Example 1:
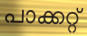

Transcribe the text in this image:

പാക്കറ്റ്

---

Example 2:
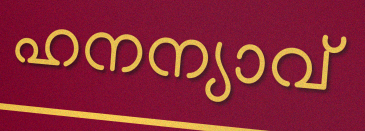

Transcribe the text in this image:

ഹനന്യാവ്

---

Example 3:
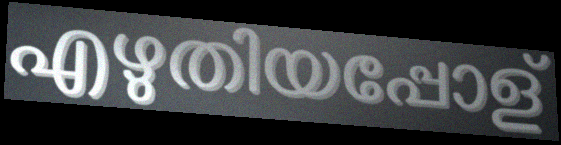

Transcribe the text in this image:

എഴുതിയപ്പോള്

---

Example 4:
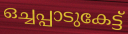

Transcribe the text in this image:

ഒച്ചപ്പാടുകേട്ട്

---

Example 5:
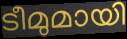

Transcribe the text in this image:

ടീമുമായി